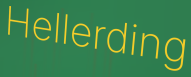
Hellerding